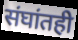
संघांतही